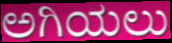
ಅಗಿಯಲು